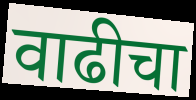
वाढीचा